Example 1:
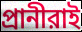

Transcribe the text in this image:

প্রানীরাই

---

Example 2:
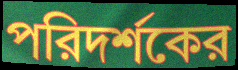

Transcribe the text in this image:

পরিদর্শকের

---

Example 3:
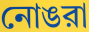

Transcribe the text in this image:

নোঙরা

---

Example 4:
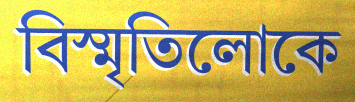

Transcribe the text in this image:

বিস্মৃতিলোকে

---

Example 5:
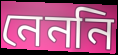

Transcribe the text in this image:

নেননি